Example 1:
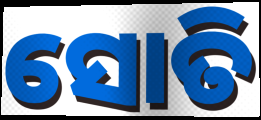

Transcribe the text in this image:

ସୋତି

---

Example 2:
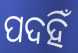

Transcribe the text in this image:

ପଦହିଁ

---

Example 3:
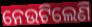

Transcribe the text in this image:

ନେଉଟିଲେଣି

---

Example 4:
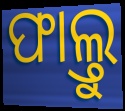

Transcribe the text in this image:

ଫାଲ୍ତୁ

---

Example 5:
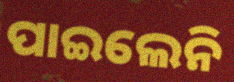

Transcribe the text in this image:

ପାଇଲେନି